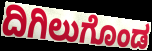
ದಿಗಿಲುಗೊಂಡ